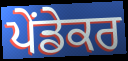
ਪੇਂਡੇਕਰ